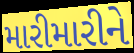
મારીમારીને